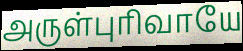
அருள்புரிவாயே